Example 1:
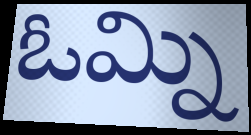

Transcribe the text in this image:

ఓమ్ని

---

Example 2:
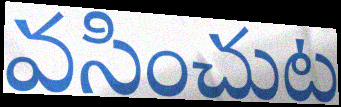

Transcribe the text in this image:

వసించుట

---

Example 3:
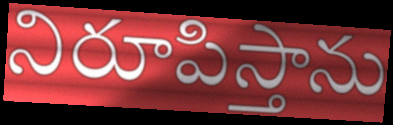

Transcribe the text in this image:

నిరూపిస్తాను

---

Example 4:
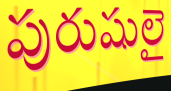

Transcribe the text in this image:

పురుషులై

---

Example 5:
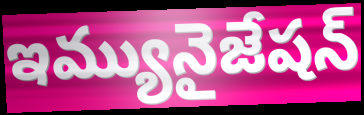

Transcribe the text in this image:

ఇమ్యునైజేషన్